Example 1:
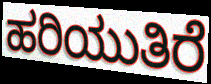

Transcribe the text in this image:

ಹರಿಯುತಿರೆ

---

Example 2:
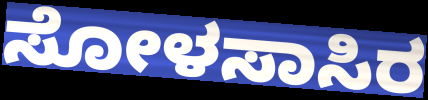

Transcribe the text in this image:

ಸೋಳಸಾಸಿರ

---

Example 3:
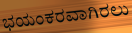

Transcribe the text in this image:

ಭಯಂಕರವಾಗಿರಲು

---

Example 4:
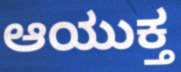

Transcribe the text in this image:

ಆಯುಕ್ತ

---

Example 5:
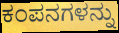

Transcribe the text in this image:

ಕಂಪನಗಳನ್ನು